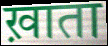
ख़ाता